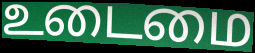
உடைமை